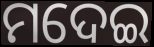
ମଦେଇ